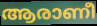
ആരാണീ